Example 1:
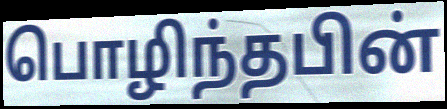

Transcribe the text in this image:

பொழிந்தபின்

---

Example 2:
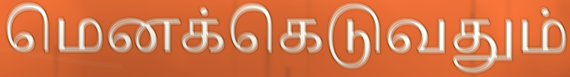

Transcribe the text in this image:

மெனக்கெடுவதும்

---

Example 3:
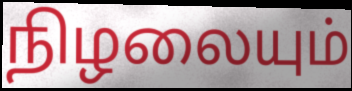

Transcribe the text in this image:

நிழலையும்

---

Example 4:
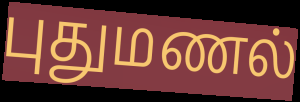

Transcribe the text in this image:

புதுமணல்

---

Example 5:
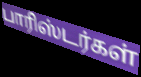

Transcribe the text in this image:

பாரிஸ்டர்கள்